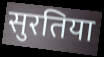
सुरतिया